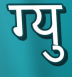
ग्यु